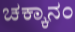
ಚಕ್ಕಾನಂ